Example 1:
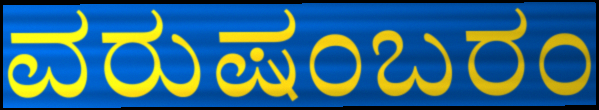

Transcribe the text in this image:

ವರುಷಂಬರಂ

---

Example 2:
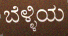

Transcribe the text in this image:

ಬೆಳ್ಳಿಯ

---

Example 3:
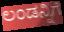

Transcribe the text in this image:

ಲಂಡನ್ನಿಗೆ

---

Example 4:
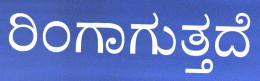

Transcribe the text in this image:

ರಿಂಗಾಗುತ್ತದೆ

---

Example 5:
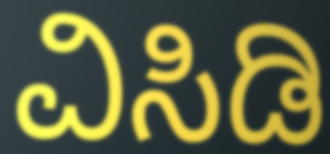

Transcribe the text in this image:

ವಿಸಿಡಿ